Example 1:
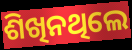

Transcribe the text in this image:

ଶିଖିନଥିଲେ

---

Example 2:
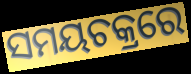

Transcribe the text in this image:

ସମୟଚକ୍ରରେ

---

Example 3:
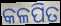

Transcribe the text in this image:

କଳପିତ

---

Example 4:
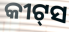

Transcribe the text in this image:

କୀଟ୍‌ସ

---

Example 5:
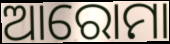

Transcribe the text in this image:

ଆରୋମା